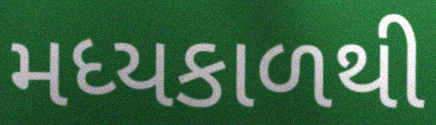
મધ્યકાળથી